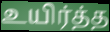
உயிர்த்த